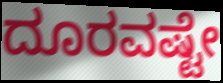
ದೂರವಷ್ಟೇ